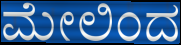
ಮೇಲಿಂದ